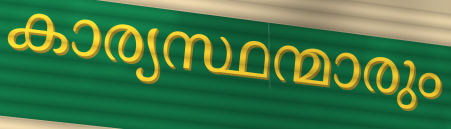
കാര്യസ്ഥന്മാരും